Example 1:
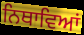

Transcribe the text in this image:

ਨਿਥਾਵਿਆਂ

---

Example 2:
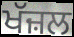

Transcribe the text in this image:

ਖੱਜ਼ਲ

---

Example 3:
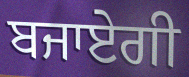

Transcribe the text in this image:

ਬਜਾਏਗੀ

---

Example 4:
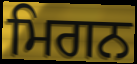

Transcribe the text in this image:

ਮਿਗਨ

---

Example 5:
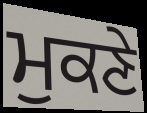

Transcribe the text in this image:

ਮੁਕਣੇ